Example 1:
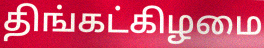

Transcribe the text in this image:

திங்கட்கிழமை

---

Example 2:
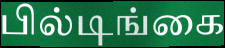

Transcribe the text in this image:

பில்டிங்கை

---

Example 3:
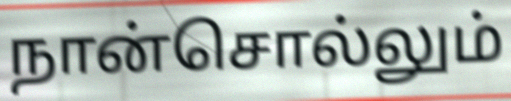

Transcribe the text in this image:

நான்சொல்லும்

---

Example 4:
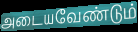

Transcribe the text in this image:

அடையவேண்டும்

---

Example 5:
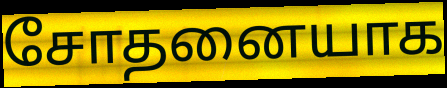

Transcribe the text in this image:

சோதனையாக